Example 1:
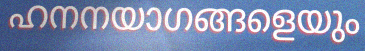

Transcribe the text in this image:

ഹനനയാഗങ്ങളെയും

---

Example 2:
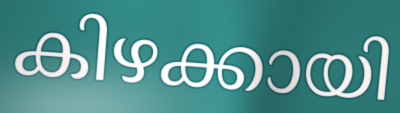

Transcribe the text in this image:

കിഴക്കായി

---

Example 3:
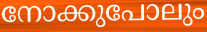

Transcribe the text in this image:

നോക്കുപോലും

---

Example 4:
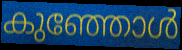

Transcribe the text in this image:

കുഞ്ഞോൾ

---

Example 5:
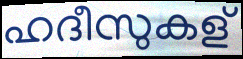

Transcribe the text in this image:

ഹദീസുകള്